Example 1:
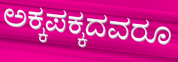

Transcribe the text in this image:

ಅಕ್ಕಪಕ್ಕದವರೂ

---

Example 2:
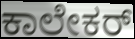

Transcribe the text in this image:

ಕಾಲೇಕರ್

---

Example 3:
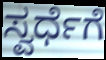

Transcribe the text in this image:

ಸ್ವರ್ಧೆಗೆ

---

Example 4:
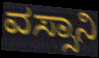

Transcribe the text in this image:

ವಸ್ಸಾನಿ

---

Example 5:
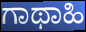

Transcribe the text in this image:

ಗಾಥಾಹಿ